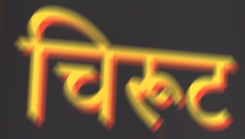
चिरूट